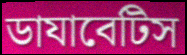
ডাযাবেটিস